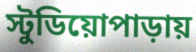
স্টুডিয়োপাড়ায়